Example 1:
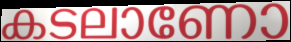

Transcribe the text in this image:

കടലാണോ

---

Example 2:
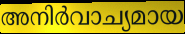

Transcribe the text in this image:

അനിർവാച്യമായ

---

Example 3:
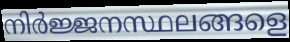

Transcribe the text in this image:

നിർജ്ജനസ്ഥലങ്ങളെ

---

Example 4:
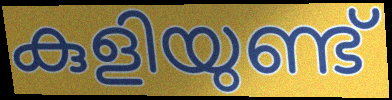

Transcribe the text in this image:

കുളിയുണ്ട്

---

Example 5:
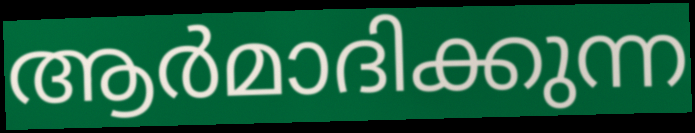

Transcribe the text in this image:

ആർമാദിക്കുന്ന